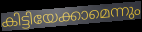
കിട്ടിയേക്കാമെന്നും